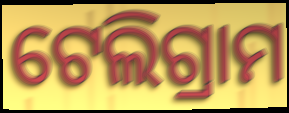
ଟେଲିଗ୍ରାମ